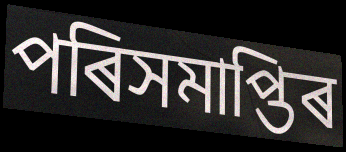
পৰিসমাপ্তিৰ